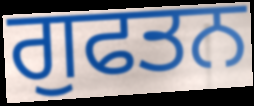
ਗੁਫਤਨ